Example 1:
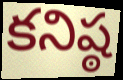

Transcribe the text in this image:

కనిష్ఠ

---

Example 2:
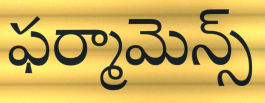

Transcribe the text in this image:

ఫర్మామెన్స్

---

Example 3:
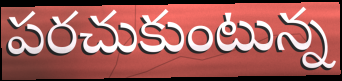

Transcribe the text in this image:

పరచుకుంటున్న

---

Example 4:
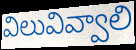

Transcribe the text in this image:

విలువివ్వాలి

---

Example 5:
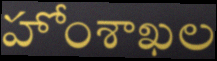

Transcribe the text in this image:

హోంశాఖల